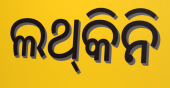
ଲଥ୍‌କିନି